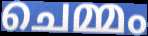
ചെമ്മം